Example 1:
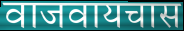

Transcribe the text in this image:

वाजवायचास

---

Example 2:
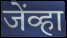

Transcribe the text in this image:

जेंव्हा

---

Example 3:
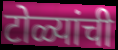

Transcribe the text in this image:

टोळ्यांची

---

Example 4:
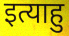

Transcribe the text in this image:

इत्याहु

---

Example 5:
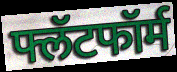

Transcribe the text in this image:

फ्लॅटफॉर्म